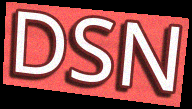
DSN